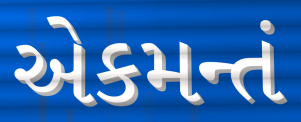
એકમન્તં